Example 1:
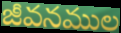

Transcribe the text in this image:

జీవనముల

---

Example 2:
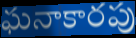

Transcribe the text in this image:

ఘనాకారపు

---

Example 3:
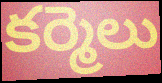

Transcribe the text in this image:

కర్మెలు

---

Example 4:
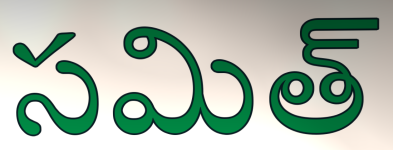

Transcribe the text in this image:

సమిత్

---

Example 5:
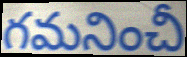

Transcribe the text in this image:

గమనించీ